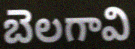
బెలగావి